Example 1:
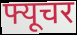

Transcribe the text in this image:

फ्यूचर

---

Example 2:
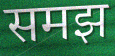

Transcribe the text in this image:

समझ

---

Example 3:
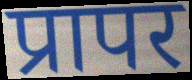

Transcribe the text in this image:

प्रापर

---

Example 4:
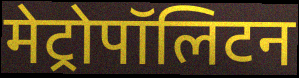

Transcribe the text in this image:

मेट्रोपॉलिटन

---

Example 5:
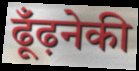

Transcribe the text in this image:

ढूँढ़नेकी